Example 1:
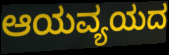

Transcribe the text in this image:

ಆಯವ್ಯಯದ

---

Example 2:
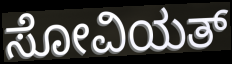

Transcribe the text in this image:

ಸೋವಿಯತ್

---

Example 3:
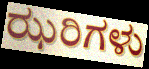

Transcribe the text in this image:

ಝರಿಗಳು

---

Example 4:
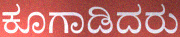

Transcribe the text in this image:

ಕೂಗಾಡಿದರು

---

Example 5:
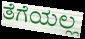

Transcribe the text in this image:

ತೆಗೆಯಲ್ಲ